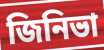
জিনিভা